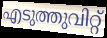
എടുത്തുവിറ്റ്